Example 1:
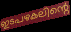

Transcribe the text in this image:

ഇടപഴകലിന്റെ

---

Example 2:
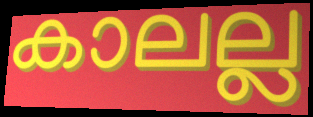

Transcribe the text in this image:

കാലല്ല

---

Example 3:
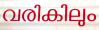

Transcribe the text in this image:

വരികിലും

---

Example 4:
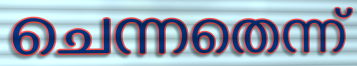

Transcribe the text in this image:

ചെന്നതെന്ന്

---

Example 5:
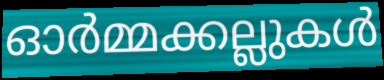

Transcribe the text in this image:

ഓർമ്മക്കല്ലുകൾ